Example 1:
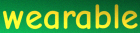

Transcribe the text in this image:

wearable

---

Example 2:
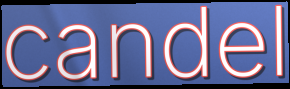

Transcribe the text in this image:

candel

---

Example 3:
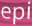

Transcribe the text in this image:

epi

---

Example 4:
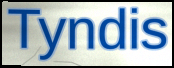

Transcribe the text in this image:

Tyndis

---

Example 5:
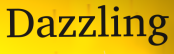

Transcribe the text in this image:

Dazzling